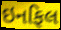
ઇનફિલ